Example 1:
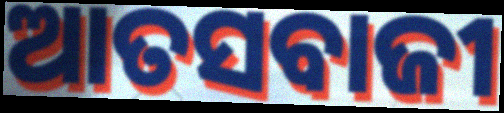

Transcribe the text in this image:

ଆତସବାଜୀ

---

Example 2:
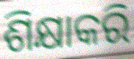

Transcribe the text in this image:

ଶିକ୍ଷାକରି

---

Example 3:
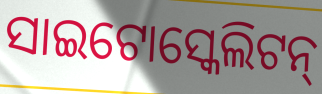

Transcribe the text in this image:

ସାଇଟୋସ୍କେଲିଟନ୍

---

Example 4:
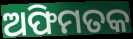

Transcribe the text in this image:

ଅଫିମତକ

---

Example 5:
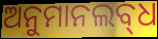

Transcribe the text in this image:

ଅନୁମାନଲବ୍‌ଧ